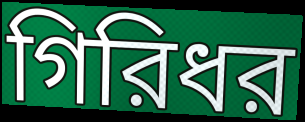
গিরিধর